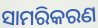
ସାମରିକରଣ